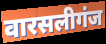
वारसलीगंज